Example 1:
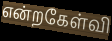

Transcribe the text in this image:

என்றகேள்வி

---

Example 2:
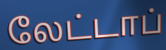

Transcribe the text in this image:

லேட்டாப்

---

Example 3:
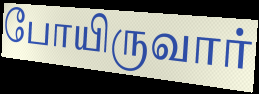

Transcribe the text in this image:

போயிருவார்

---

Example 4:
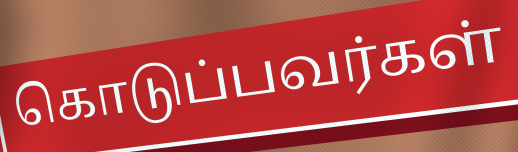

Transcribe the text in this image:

கொடுப்பவர்கள்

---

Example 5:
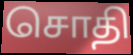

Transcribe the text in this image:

சொதி